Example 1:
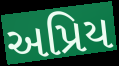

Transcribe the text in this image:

અપ્રિય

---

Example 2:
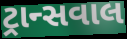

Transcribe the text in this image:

ટ્રાન્સવાલ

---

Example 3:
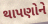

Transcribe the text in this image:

થાપણોને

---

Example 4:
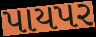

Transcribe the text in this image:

પાયપર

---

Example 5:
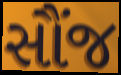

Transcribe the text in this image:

સૌંજ